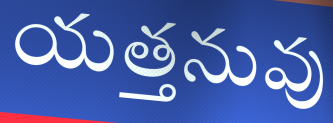
యత్తనువు